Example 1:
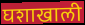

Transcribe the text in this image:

घशाखाली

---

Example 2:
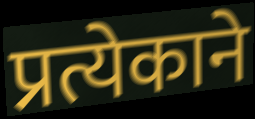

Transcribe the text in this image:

प्रत्येकाने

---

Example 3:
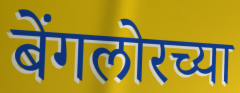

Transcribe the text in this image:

बेंगलोरच्या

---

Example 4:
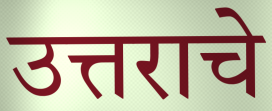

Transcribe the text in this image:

उत्तराचे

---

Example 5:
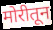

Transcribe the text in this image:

मोरीतून